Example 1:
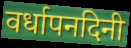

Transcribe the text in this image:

वर्धापनदिनी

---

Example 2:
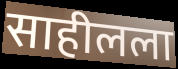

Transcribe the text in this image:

साहीलला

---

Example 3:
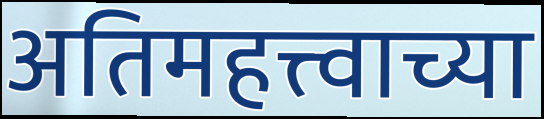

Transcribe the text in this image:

अतिमहत्त्वाच्या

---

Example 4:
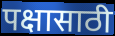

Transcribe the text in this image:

पक्षासाठी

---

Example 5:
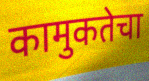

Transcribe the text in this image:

कामुकतेचा